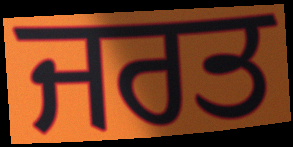
ਜਰਤ